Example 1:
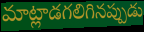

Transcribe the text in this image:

మాట్లాడగలిగినప్పుడు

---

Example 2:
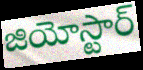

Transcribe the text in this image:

జియోస్టార్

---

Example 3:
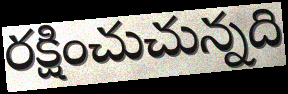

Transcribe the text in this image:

రక్షించుచున్నది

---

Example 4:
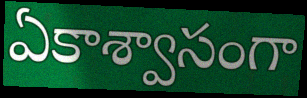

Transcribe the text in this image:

ఏకాశ్వాసంగా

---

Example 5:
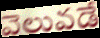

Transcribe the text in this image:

వెలువడే